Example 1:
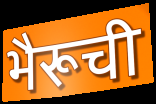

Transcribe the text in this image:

भैरूची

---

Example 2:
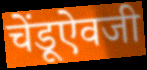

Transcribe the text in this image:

चेंडूऐवजी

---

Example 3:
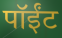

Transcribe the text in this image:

पॉईंट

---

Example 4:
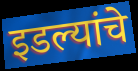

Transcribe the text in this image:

इडल्यांचे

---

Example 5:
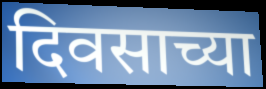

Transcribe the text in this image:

दिवसाच्या